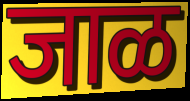
जाळ